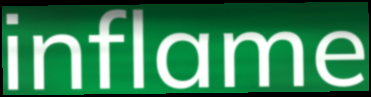
inflame